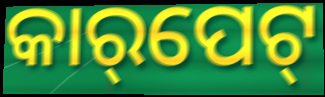
କାର୍‌ପେଟ୍